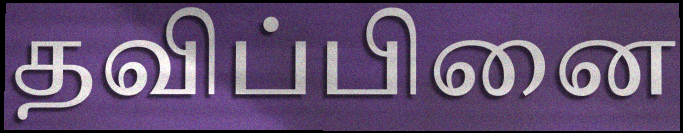
தவிப்பினை